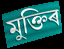
মুক্তিৰ